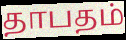
தாபதம்